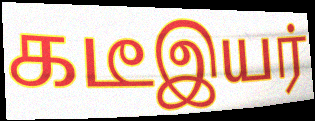
கடீஇயர்